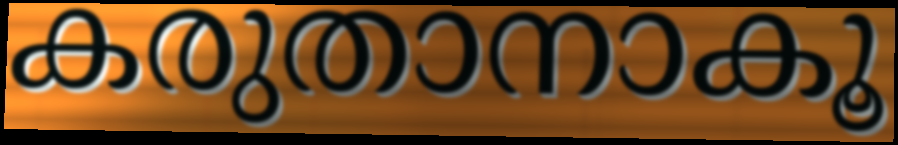
കരുതാനാകൂ